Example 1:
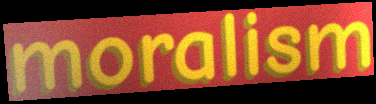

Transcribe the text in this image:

moralism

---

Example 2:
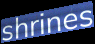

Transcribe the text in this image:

shrines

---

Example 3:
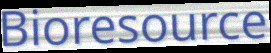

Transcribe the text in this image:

Bioresource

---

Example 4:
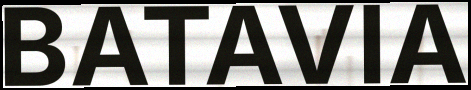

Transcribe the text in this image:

BATAVIA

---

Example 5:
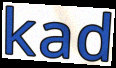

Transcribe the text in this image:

kad